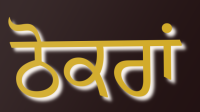
ਠੋਕਰਾਂ